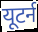
यूटर्न